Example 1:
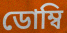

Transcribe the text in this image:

ডোম্বি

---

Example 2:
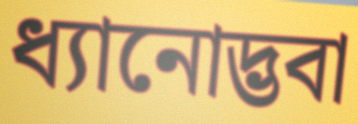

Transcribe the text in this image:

ধ্যানোদ্ভবা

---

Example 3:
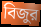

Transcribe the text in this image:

বিজুর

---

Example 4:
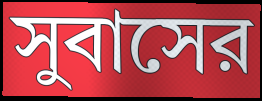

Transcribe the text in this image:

সুবাসের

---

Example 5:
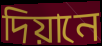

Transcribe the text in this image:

দিয়ানে